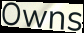
Owns